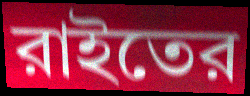
রাইতের